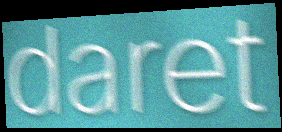
daret